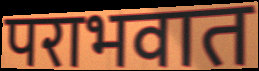
पराभवात